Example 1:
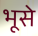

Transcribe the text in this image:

भूसे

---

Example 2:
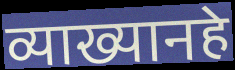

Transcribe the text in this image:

व्याख्यानहे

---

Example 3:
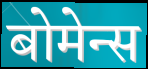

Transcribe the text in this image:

बोमेन्स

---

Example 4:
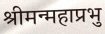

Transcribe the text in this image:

श्रीमन्महाप्रभु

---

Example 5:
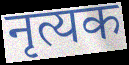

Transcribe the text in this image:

नृत्यक